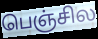
பெஞ்சில